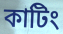
কাটিং